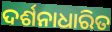
ଦର୍ଶନାଧାରିତ